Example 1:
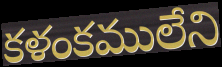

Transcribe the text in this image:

కళంకములేని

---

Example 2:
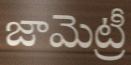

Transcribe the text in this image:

జామెట్రీ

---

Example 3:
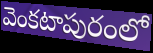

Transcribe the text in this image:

వెంకటాపురంలో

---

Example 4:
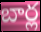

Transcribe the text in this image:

బార్ల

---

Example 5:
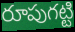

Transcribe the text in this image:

రూపుగట్టి